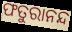
ଫତୁରାନନ୍ଦ